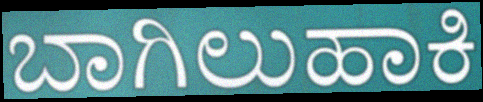
ಬಾಗಿಲುಹಾಕಿ